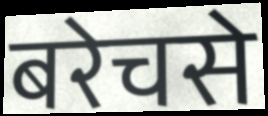
बरेचसे